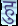
हु